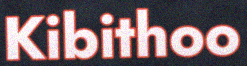
Kibithoo